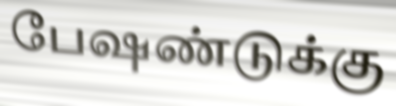
பேஷண்டுக்கு